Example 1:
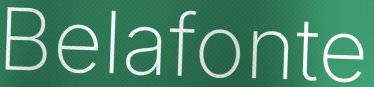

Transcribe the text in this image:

Belafonte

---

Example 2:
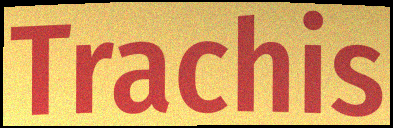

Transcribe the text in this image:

Trachis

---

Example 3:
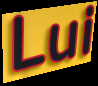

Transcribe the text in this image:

Lui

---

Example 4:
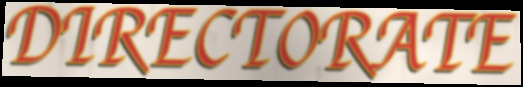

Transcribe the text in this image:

DIRECTORATE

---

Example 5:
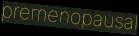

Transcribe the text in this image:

premenopausal